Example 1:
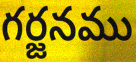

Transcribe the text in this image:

గర్జనము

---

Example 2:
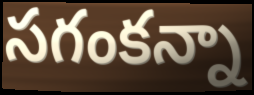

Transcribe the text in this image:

సగంకన్నా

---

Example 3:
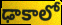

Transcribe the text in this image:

ఢాకాలో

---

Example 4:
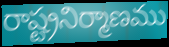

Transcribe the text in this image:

రాష్ట్రనిర్మాణము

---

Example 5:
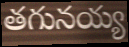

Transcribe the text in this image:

తగునయ్య